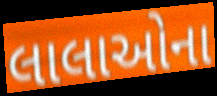
લાલાઓના